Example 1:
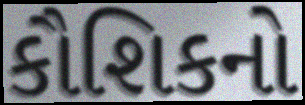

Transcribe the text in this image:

કૌશિકનો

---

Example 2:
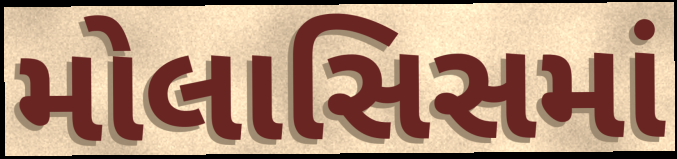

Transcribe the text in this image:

મોલાસિસમાં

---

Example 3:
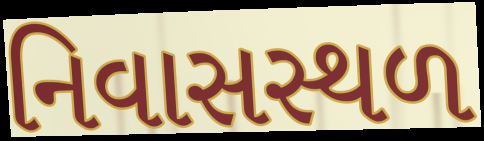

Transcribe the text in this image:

નિવાસસ્થળ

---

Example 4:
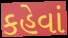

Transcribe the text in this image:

કહેવાં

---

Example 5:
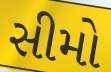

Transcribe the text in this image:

સીમો